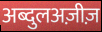
अब्दुलअज़ीज़